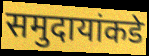
समुदायांकडे